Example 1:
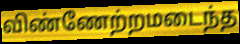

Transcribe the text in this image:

விண்ணேற்றமடைந்த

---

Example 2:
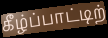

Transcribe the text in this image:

கீழ்ப்பாட்டிற்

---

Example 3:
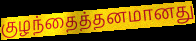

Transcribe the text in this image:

குழந்தைத்தனமானது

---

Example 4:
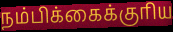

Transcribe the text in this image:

நம்பிக்கைக்குரிய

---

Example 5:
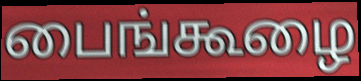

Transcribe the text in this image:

பைங்கூழை